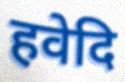
हवेदि